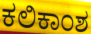
ಕಲಿಕಾಂಶ